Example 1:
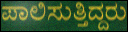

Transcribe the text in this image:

ಪಾಲಿಸುತ್ತಿದ್ದರು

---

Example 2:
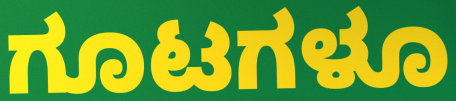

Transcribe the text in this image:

ಗೂಟಗಳೂ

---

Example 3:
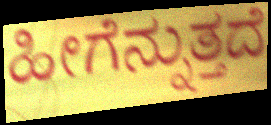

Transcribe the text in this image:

ಹೀಗೆನ್ನುತ್ತದೆ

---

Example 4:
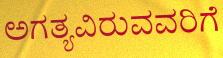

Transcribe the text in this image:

ಅಗತ್ಯವಿರುವವರಿಗೆ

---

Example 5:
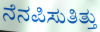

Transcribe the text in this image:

ನೆನಪಿಸುತಿತ್ತು